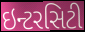
ઇન્ટરસિટી